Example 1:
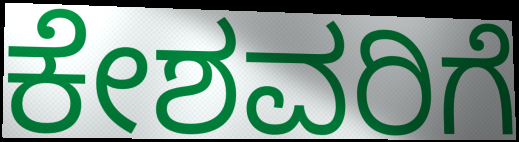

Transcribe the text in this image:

ಕೇಶವರಿಗೆ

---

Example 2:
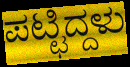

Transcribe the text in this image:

ಪಟ್ಟಿದ್ದಳು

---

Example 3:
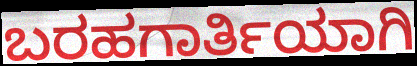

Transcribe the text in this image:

ಬರಹಗಾರ್ತಿಯಾಗಿ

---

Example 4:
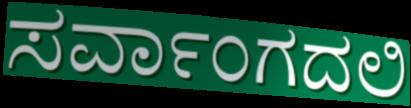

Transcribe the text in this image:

ಸರ್ವಾಂಗದಲಿ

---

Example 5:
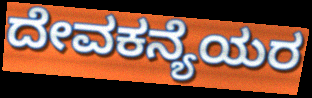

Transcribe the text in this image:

ದೇವಕನ್ಯೆಯರ